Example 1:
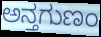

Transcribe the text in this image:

ಅನ್ತಗುಣಂ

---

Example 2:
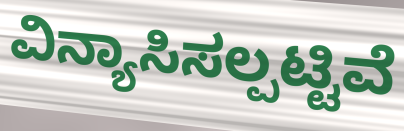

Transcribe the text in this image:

ವಿನ್ಯಾಸಿಸಲ್ಪಟ್ಟಿವೆ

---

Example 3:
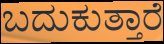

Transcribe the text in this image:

ಬದುಕುತ್ತಾರೆ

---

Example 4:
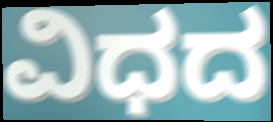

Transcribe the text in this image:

ವಿಧದ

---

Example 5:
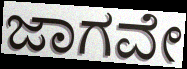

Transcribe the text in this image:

ಜಾಗವೇ